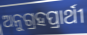
ଅନୁଗ୍ରହପ୍ରାର୍ଥୀ